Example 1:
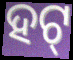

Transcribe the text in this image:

ହଟ୍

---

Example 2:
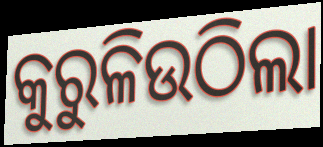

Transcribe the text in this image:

କୁରୁଳିଉଠିଲା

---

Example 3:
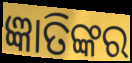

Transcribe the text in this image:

ଜ୍ଞାତିଙ୍କର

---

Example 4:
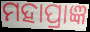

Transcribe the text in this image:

ମହାପ୍ରାଜ୍ଞ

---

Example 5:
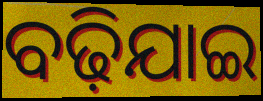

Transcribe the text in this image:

ବଢ଼ିଯାଇ